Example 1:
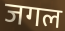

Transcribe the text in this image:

जगल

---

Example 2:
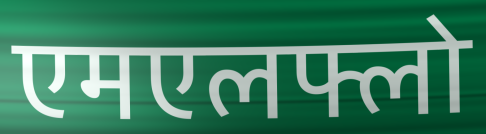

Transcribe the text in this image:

एमएलफ्लो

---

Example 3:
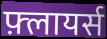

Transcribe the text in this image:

फ़्लायर्स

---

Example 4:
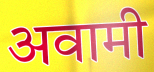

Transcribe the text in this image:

अवामी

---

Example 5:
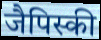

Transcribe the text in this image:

जैपिस्की